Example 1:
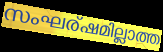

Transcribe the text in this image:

സംഘര്ഷമില്ലാത്ത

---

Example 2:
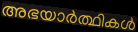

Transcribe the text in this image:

അഭയാർത്ഥികൾ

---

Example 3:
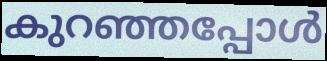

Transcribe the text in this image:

കുറഞ്ഞപ്പോൾ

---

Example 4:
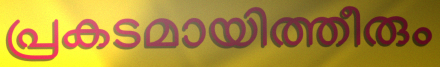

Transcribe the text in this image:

പ്രകടമായിത്തീരും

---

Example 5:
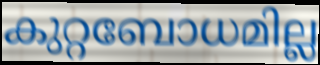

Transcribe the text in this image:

കുറ്റബോധമില്ല